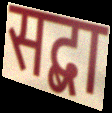
सद्बा